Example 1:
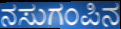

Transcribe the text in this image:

ನಸುಗಂಪಿನ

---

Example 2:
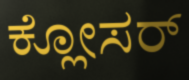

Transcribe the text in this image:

ಕ್ಲೋಸರ್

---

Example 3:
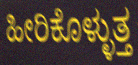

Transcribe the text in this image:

ಹೀರಿಕೊಳ್ಳುತ್ತ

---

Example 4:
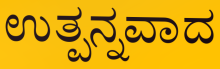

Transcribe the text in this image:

ಉತ್ಪನ್ನವಾದ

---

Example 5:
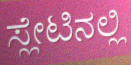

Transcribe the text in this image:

ಸ್ಲೇಟಿನಲ್ಲಿ